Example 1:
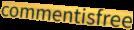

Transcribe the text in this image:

commentisfree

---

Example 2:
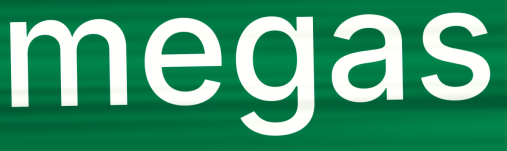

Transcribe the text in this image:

megas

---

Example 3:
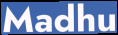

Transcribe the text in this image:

Madhu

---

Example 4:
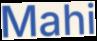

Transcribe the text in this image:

Mahi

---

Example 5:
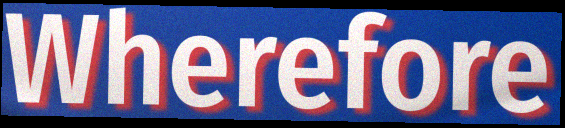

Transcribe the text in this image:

Wherefore